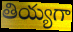
తియ్యగా